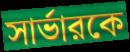
সার্ভারকে